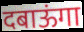
दबाऊंगा